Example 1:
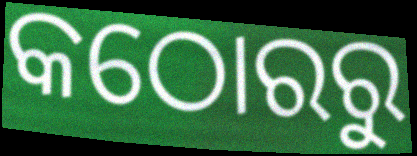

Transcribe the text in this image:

କଠୋରରୁ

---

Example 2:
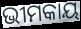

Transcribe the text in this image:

ଭୀମକାୟ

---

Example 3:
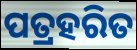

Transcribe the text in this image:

ପତ୍ରହରିତ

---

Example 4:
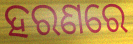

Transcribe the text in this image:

ହରଣରେ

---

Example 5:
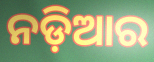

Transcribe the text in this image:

ନଡ଼ିଆର